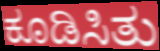
ಕೂಡಿಸಿತು